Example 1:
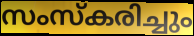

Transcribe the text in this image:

സംസ്കരിച്ചും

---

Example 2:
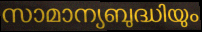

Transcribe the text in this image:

സാമാന്യബുദ്ധിയും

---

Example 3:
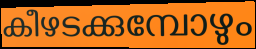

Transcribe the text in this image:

കീഴടക്കുമ്പോഴും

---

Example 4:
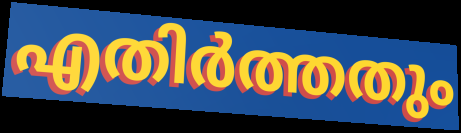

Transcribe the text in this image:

എതിർത്തതും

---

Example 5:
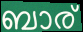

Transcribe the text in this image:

ബാര്